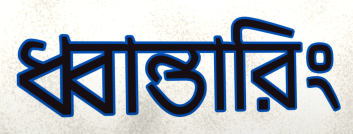
ধ্বান্তারিং